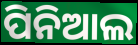
ପିନିଆଲ